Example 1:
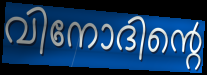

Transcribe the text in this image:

വിനോദിന്റെ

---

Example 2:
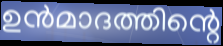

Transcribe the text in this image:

ഉൻമാദത്തിന്റെ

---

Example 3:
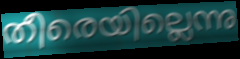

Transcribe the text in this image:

തീരെയില്ലെന്നു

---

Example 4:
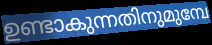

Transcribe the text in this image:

ഉണ്ടാകുന്നതിനുമുമ്പേ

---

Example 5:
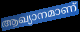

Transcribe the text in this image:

ആഖ്യാനമാണ്